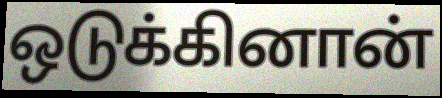
ஒடுக்கினான்